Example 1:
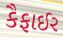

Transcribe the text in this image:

કૈફાઈર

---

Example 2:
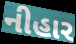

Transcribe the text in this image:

નીહાર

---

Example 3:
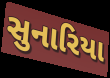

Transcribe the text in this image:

સુનારિયા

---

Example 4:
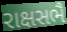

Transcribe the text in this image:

રાક્ષસભૈ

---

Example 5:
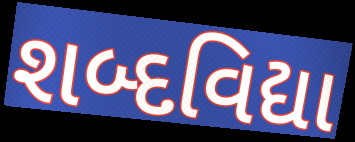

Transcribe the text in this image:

શબ્દવિદ્યા